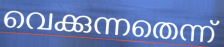
വെക്കുന്നതെന്ന്